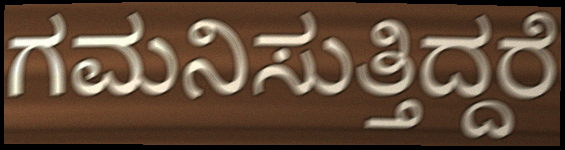
ಗಮನಿಸುತ್ತಿದ್ದರೆ